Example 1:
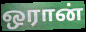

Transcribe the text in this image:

ஒரான்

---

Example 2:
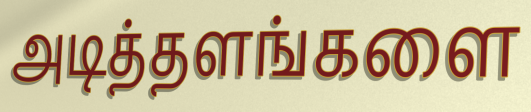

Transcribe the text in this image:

அடித்தளங்களை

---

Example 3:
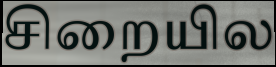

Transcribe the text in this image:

சிறையில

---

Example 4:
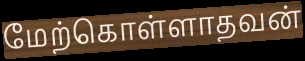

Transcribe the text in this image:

மேற்கொள்ளாதவன்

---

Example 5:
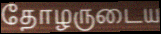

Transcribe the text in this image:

தோழருடைய